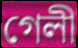
গেলী